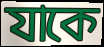
যাকে